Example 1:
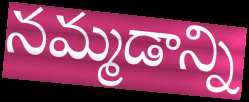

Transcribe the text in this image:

నమ్మడాన్ని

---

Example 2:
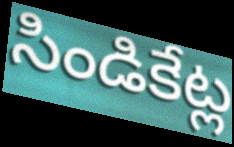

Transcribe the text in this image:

సిండికేట్ల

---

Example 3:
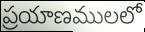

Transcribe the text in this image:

ప్రయాణములలో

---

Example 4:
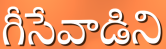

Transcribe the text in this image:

గీసేవాడిని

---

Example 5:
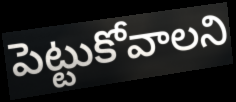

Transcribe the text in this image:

పెట్టుకోవాలని